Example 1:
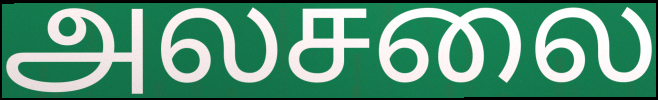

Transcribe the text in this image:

அலசலை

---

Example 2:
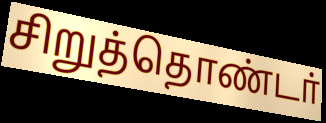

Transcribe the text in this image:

சிறுத்தொண்டர்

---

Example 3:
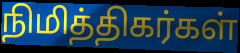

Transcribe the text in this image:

நிமித்திகர்கள்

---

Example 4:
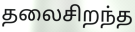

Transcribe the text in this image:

தலைசிறந்த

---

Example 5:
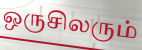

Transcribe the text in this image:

ஒருசிலரும்